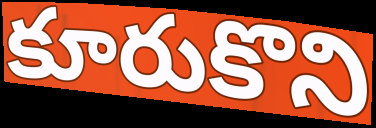
కూరుకొని